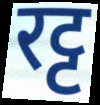
रट्ट